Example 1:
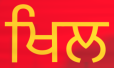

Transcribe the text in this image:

ਖਿਲ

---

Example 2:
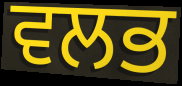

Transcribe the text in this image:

ਵਲਭ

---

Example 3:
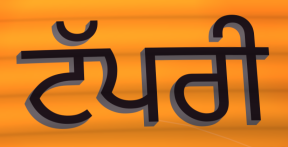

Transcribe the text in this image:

ਟੱਪਰੀ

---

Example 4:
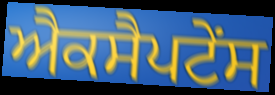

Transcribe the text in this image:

ਐਕਸੈਪਟੇਂਸ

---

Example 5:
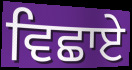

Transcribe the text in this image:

ਵਿਛਾਏ